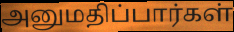
அனுமதிப்பார்கள்